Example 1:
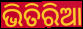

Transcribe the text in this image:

ଭିତିରିଆ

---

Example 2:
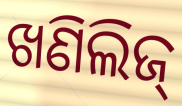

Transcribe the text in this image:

ଖଣିଲିଜ୍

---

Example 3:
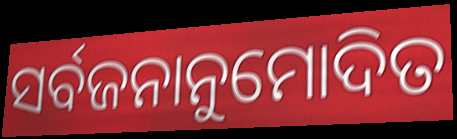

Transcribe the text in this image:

ସର୍ବଜନାନୁମୋଦିତ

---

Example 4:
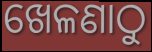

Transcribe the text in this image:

ଖେଳଣାଠୁ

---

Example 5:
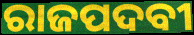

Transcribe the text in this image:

ରାଜପଦବୀ